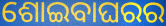
ଶୋଇବାଘରର